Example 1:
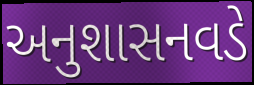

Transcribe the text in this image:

અનુશાસનવડે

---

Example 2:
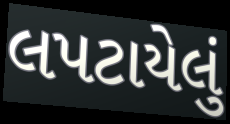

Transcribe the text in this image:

લપટાયેલું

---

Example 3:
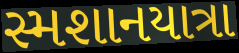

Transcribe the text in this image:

સ્મશાનયાત્રા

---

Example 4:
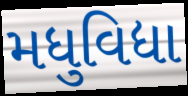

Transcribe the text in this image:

મધુવિદ્યા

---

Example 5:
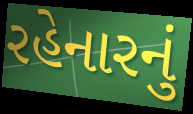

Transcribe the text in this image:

રહેનારનું